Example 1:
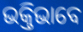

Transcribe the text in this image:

ଭକ୍ତିଭାବେ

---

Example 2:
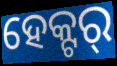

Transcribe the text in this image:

ହେକ୍ଟର୍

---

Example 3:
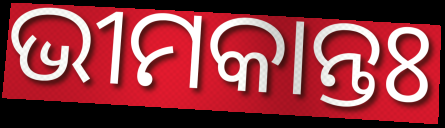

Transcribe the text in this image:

ଭୀମକାନ୍ତଃ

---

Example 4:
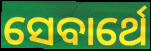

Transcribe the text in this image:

ସେବାର୍ଥେ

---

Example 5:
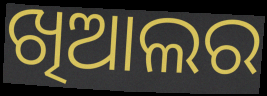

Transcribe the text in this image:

ଖିଆଲର